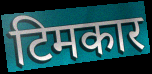
टिमकार